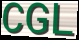
CGL